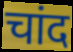
चांद